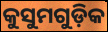
କୁସୁମଗୁଡ଼ିକ